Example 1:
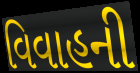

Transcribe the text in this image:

વિવાહની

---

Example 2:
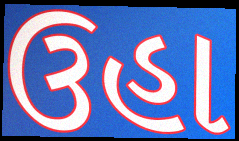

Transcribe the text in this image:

ઉહા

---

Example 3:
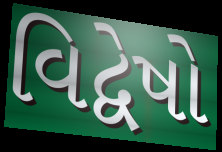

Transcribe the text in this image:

વિદ્વેષો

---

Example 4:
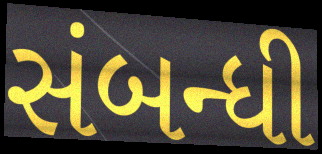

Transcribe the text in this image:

સંબન્ધી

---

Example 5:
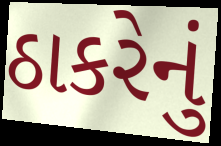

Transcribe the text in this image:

ઠાકરેનું